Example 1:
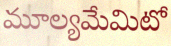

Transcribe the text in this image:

మూల్యమేమిటో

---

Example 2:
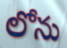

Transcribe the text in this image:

లోను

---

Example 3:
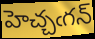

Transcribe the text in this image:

హెచ్చఁగన్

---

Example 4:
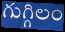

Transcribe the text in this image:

గుగ్గిలం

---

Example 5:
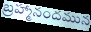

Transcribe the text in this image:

బ్రహ్మానందమున